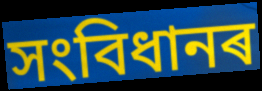
সংবিধানৰ